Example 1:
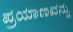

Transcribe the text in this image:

ಪ್ರಯಾಣವನ್ನು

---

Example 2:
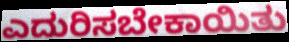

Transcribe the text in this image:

ಎದುರಿಸಬೇಕಾಯಿತು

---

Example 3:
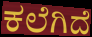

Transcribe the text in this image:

ಕಲೆಗಿದೆ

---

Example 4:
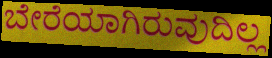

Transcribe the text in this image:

ಬೇರೆಯಾಗಿರುವುದಿಲ್ಲ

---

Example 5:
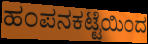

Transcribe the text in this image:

ಹಂಪನಕಟ್ಟೆಯಿಂದ